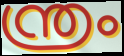
ന്ത്രം